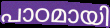
പാഠമായി